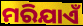
ମରିଯାଏଁ